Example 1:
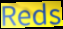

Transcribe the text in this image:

Reds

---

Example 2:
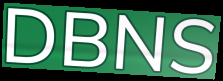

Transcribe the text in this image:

DBNS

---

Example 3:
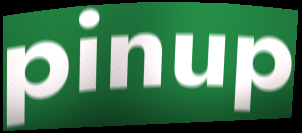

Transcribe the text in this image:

pinup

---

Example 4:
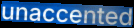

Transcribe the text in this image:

unaccented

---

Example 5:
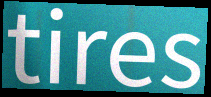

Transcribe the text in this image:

tires